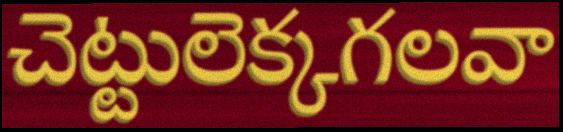
చెట్టులెక్కగలవా